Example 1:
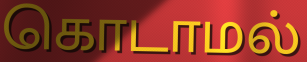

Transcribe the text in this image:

கொடாமல்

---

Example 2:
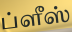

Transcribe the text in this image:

ப்ளீஸ்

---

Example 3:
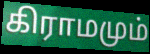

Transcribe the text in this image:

கிராமமும்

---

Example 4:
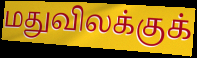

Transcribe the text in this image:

மதுவிலக்குக்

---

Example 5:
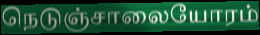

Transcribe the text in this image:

நெடுஞ்சாலையோரம்